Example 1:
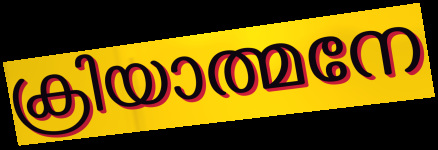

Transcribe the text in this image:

ക്രിയാത്മനേ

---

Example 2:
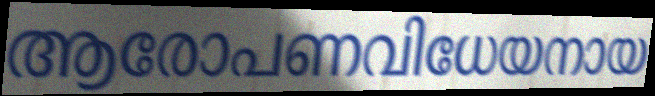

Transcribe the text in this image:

ആരോപണവിധേയനായ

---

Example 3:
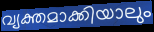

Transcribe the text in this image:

വ്യക്തമാക്കിയാലും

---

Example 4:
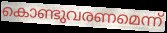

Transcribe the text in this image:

കൊണ്ടുവരണമെന്ന്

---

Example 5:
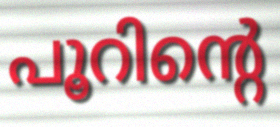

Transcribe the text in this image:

പൂറിന്റെ